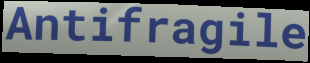
Antifragile